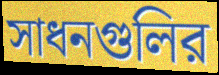
সাধনগুলির